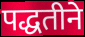
पद्धतीने